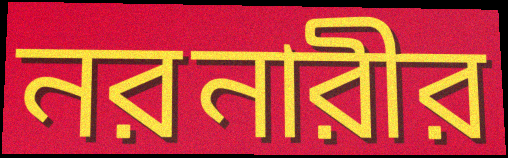
নরনারীর